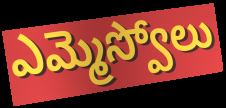
ఎమ్మెస్వోలు